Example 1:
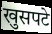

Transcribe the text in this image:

खुसपटे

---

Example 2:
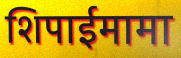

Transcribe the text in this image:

शिपाईमामा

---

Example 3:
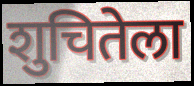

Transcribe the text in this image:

शुचितेला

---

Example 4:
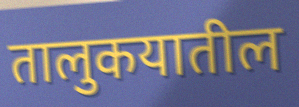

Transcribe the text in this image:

तालुकयातील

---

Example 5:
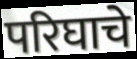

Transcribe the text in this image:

परिघाचे